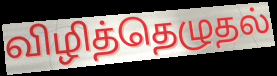
விழித்தெழுதல்